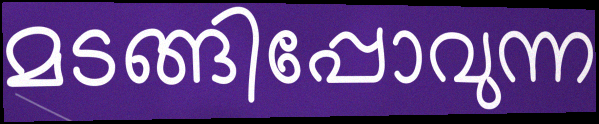
മടങ്ങിപ്പോവുന്ന